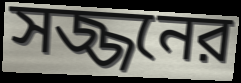
সজ্জনের